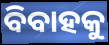
ବିବାହକୁ